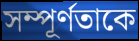
সম্পূর্ণতাকে